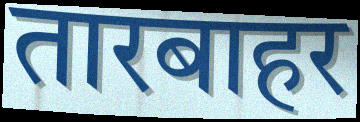
तारबाहर